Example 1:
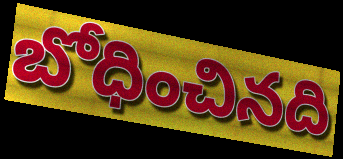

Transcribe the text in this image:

బోధించినది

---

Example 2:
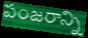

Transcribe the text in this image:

పంజరాన్ని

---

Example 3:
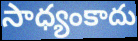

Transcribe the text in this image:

సాధ్యంకాదు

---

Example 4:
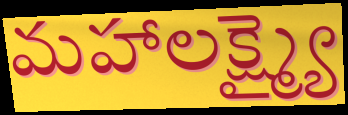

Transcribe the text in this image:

మహాలక్ష్మ్యై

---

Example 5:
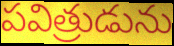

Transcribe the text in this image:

పవిత్రుడును